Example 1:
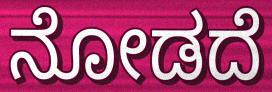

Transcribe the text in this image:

ನೋಡದೆ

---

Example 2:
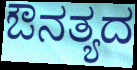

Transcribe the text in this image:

ಔನತ್ಯದ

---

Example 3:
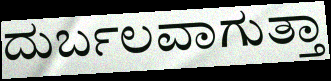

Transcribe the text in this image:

ದುರ್ಬಲವಾಗುತ್ತಾ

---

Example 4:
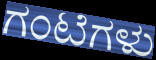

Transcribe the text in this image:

ಗಂಟೆಗಳು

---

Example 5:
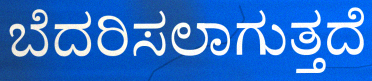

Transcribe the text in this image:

ಬೆದರಿಸಲಾಗುತ್ತದೆ